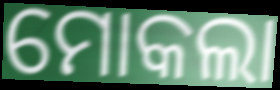
ମୋକଲା